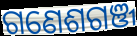
ଗଣେଶଗଞ୍ଜ